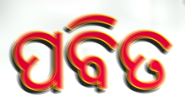
ପବିତ